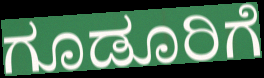
ಗೂಡೂರಿಗೆ